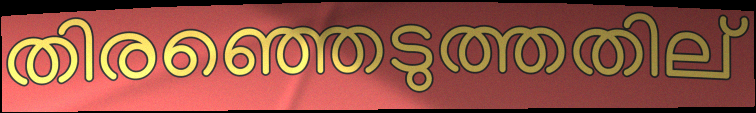
തിരഞ്ഞെടുത്തതില്